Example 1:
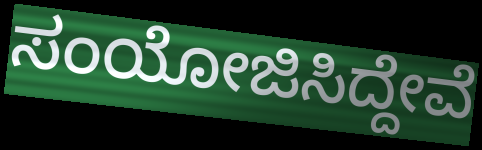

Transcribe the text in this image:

ಸಂಯೋಜಿಸಿದ್ದೇವೆ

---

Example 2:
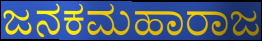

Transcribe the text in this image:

ಜನಕಮಹಾರಾಜ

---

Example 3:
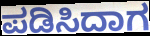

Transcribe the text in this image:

ಪಡಿಸಿದಾಗ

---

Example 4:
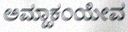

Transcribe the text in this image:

ಅಮ್ಹಾಕಂಯೇವ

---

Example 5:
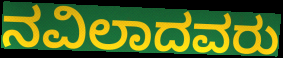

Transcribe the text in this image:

ನವಿಲಾದವರು